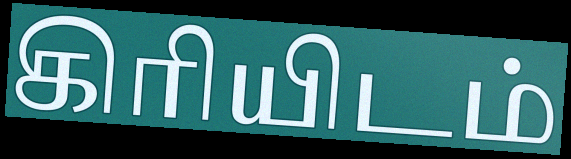
கிரியிடம்